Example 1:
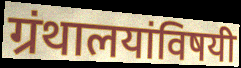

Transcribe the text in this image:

ग्रंथालयांविषयी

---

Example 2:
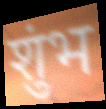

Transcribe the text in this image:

शुंभ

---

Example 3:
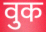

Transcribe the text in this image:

वुक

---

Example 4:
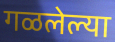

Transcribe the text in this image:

गळलेल्या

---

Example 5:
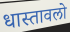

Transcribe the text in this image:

धास्तावलो